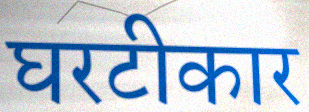
घरटीकार